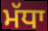
ਮੱਧਾ